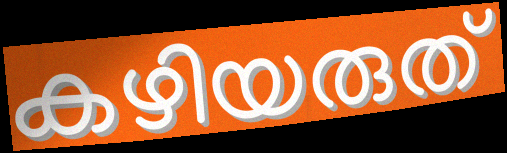
കഴിയരുത്